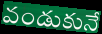
వండుకునే